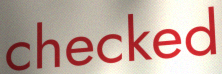
checked